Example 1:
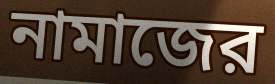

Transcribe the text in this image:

নামাজের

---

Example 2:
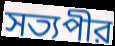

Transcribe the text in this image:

সত্যপীর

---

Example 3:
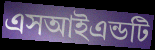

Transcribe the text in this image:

এসআইএন্ডটি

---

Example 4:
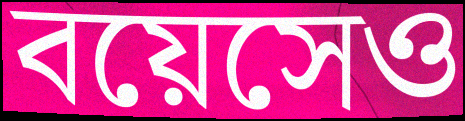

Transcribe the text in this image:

বয়েসেও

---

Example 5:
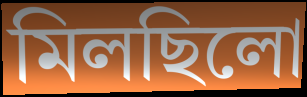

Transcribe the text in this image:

মিলছিলো